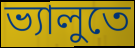
ভ্যালুতে